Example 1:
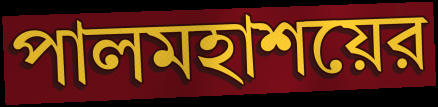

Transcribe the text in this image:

পালমহাশয়ের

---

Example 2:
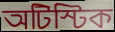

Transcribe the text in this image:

অটিস্টিক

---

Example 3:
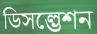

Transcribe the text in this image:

ডিসল্ভেশন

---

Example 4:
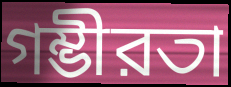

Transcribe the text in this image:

গম্ভীরতা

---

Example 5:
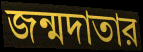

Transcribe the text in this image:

জন্মদাতার